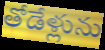
తోడేళ్లును